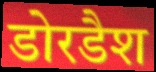
डोरडैश